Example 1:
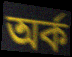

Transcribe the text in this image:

অর্ক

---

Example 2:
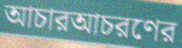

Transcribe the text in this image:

আচারআচরণের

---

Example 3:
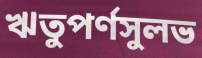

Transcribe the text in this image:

ঋতুপর্ণসুলভ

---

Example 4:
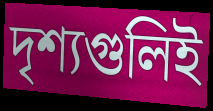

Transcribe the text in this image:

দৃশ্যগুলিই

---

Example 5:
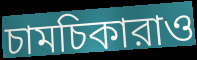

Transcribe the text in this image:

চামচিকারাও